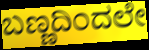
ಬಣ್ಣದಿಂದಲೇ